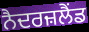
ਨੈਦਰਜ਼ਲੈਂਡ